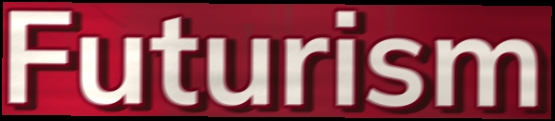
Futurism